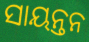
ସାୟନ୍ତନ